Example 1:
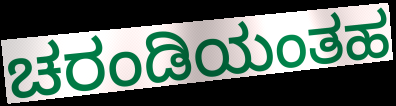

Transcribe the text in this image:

ಚರಂಡಿಯಂತಹ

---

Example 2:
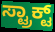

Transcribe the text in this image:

ಸ್ಟ್ರಾಕ್ಟ್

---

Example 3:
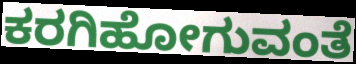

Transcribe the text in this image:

ಕರಗಿಹೋಗುವಂತೆ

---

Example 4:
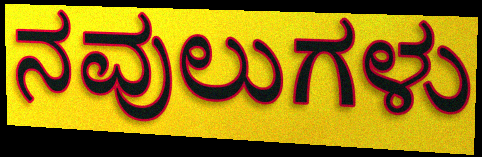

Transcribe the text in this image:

ನವುಲುಗಳು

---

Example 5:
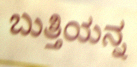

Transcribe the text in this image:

ಬುತ್ತಿಯನ್ನ